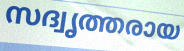
സദ്വൃത്തരായ